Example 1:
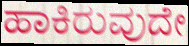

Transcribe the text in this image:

ಹಾಕಿರುವುದೇ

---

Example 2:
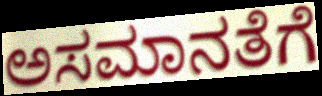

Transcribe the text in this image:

ಅಸಮಾನತೆಗೆ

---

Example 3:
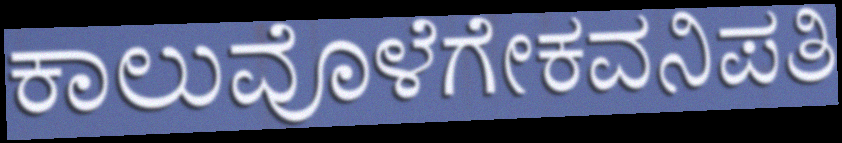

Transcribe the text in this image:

ಕಾಲುವೊಳೆಗೇಕವನಿಪತಿ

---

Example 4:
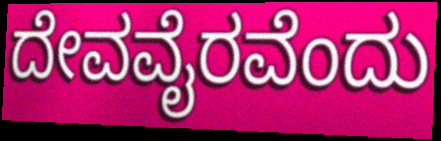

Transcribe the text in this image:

ದೇವವೈರವೆಂದು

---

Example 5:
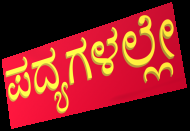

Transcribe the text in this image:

ಪದ್ಯಗಳಲ್ಲೇ